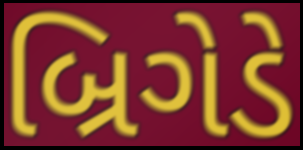
બ્રિગેડે